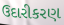
ઉદારીકરણ